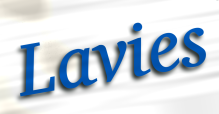
Lavies